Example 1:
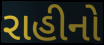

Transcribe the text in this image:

રાહીનો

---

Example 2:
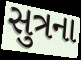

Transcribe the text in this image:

સુત્રના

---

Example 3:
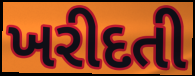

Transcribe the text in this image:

ખરીદતી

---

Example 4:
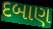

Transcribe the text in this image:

દબાણ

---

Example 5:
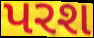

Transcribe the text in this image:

પરશ